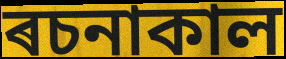
ৰচনাকাল